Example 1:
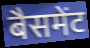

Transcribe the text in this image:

बैसमेंट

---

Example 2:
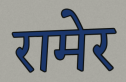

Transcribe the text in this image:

रामेर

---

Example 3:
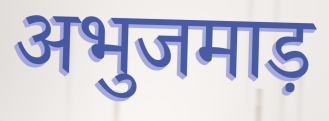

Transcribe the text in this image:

अभुजमाड़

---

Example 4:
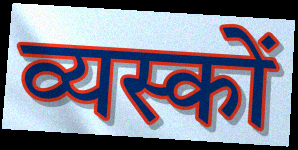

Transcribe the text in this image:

व्यस्कों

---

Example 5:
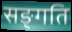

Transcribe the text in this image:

सङ्गति